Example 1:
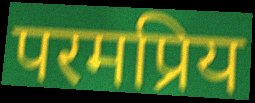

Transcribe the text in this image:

परमप्रिय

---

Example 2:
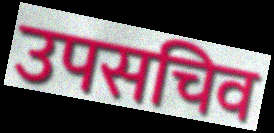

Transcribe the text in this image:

उपसचिव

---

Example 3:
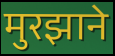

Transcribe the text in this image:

मुरझाने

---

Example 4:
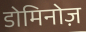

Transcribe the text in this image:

डोमिनोज़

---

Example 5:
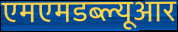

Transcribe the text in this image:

एमएमडब्ल्यूआर